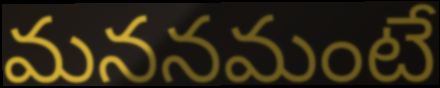
మననమంటే